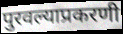
पुरवल्याप्रकरणी